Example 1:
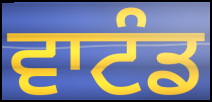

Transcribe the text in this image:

ਵਾਟੰਡ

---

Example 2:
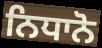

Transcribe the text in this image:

ਨਿਧਾਨੋ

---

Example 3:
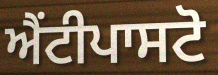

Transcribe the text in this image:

ਐਂਟੀਪਾਸਟੋ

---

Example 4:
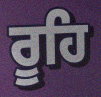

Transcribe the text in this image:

ਰੂਹਿ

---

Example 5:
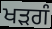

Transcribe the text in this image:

ਖੜਗੰ